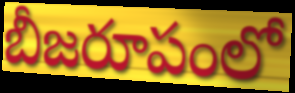
బీజరూపంలో